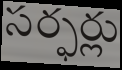
సర్ఫర్లు